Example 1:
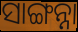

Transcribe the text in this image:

ସାଙ୍ଗନ୍ନା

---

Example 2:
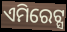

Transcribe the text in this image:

ଏମିରେଟ୍ସ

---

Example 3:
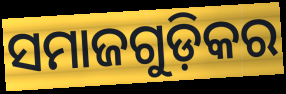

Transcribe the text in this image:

ସମାଜଗୁଡ଼ିକର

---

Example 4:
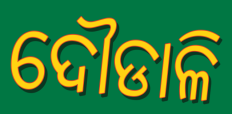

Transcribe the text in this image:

ଦୌଡାଳି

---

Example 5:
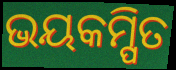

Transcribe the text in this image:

ଭୟକମ୍ପିତ